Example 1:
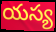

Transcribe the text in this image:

యస్య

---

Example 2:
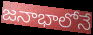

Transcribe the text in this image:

జనాభాలోనే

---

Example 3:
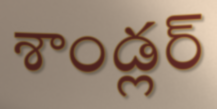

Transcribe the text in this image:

శాండ్లర్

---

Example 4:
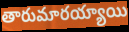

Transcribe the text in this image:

తారుమారయ్యాయి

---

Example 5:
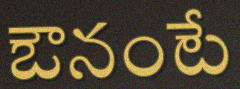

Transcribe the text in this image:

ఔనంటే